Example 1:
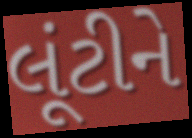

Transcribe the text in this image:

લૂંટીને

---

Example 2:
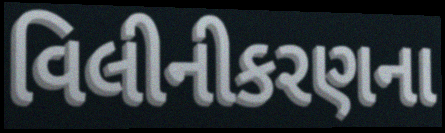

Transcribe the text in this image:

વિલીનીકરણના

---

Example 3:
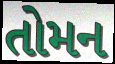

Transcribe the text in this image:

તોમન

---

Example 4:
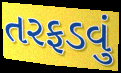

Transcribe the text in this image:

તરફડવું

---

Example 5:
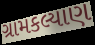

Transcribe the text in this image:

ગ્રામકલ્યાણ